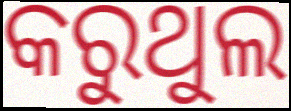
କରୁଥୁଲ